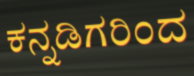
ಕನ್ನಡಿಗರಿಂದ